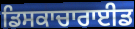
ਡਿਸਕਾਚਾਰਾਈਡ